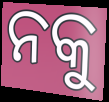
ନକୁ